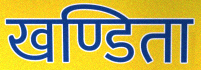
खण्डिता